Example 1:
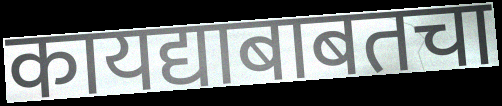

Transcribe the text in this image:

कायद्याबाबतचा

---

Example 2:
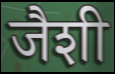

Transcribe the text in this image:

जैशी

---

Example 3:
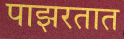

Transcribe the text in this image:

पाझरतात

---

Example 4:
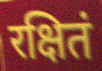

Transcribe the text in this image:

रक्षितं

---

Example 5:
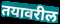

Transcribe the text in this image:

तयावरील